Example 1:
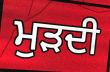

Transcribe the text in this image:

ਮੁੜਦੀ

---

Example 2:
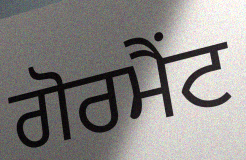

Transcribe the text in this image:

ਗੋਰਮੈਂਟ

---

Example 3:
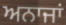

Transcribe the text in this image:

ਅਨਾਜਾਂ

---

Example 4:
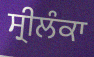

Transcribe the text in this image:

ਸ੍ਰੀਲੰਕਾ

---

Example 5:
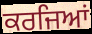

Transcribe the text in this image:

ਕਰਜਿਆਂ